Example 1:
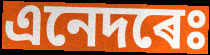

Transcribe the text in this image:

এনেদৰেঃ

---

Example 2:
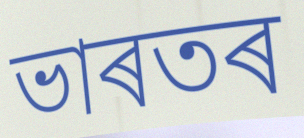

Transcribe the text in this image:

ভাৰতৰ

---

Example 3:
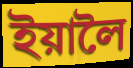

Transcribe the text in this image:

ইয়ালৈ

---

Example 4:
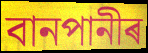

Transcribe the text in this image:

বানপানীৰ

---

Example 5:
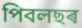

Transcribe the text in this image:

পিবলছৰ